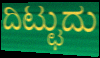
ದಿಟ್ಟುದು